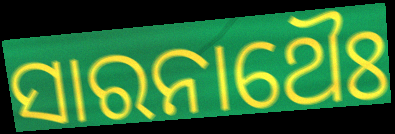
ସାରନାଥୈଃ